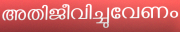
അതിജീവിച്ചുവേണം